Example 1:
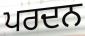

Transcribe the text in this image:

ਪਰਦਨ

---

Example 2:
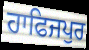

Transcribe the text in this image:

ਹਾਫਿਜਪੁਰ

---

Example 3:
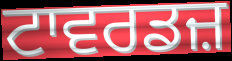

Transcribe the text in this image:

ਟਾਵਰਡਜ਼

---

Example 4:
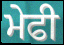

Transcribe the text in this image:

ਮੇਫੀ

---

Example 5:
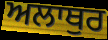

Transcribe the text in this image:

ਅਲਾਥੁਰ